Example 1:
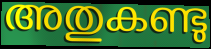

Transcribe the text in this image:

അതുകണ്ടു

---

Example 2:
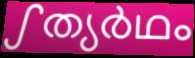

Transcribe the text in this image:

ഽത്യർഥം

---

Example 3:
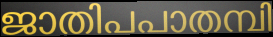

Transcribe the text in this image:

ജാതിപപാതമ്പി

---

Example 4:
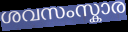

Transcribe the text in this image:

ശവസംസ്കാര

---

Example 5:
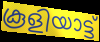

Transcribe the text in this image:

കൂളിയാട്ട്